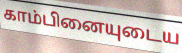
காம்பினையுடைய